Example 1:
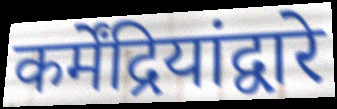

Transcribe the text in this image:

कर्मेंद्रियांद्वारे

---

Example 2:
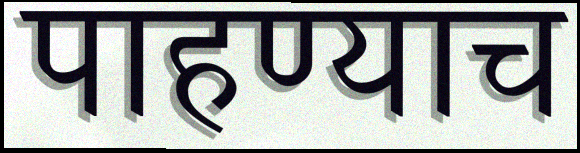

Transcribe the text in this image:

पाहण्याच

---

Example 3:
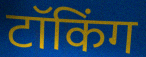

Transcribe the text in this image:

टॉकिंग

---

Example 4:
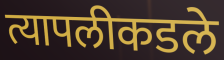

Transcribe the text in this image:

त्यापलीकडले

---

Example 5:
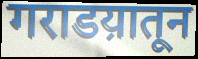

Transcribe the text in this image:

गराडय़ातून